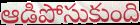
ఆడిపోసుకుంది